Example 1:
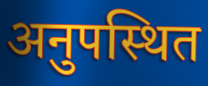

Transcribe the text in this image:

अनुपस्थित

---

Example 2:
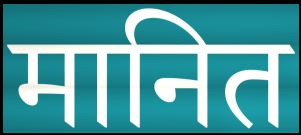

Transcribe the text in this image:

मानित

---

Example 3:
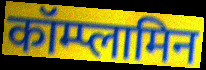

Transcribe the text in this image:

कॉम्प्लामिन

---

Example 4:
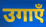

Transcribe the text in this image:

उगाएँ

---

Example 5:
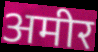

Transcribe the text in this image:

अमीर